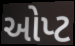
ઓપ્ટ